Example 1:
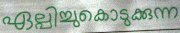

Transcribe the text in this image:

ഏല്പിച്ചുകൊടുക്കുന്ന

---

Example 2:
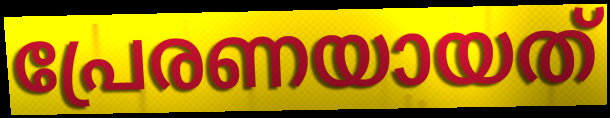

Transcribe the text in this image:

പ്രേരണയായത്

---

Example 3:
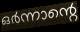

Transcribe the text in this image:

ഒർന്നാന്റെ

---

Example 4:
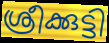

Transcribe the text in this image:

ശ്രീക്കുട്ടി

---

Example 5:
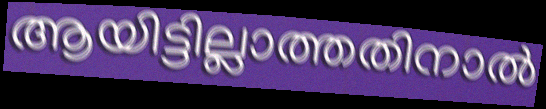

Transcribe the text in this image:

ആയിട്ടില്ലാത്തതിനാൽ